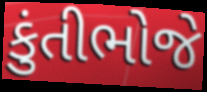
કુંતીભોજે